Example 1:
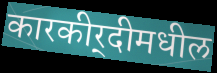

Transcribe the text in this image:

कारकीर्दीमधील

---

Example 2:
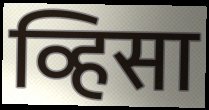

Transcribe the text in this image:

व्हिसा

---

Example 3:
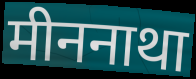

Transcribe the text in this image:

मीननाथा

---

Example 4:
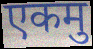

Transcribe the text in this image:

एकमु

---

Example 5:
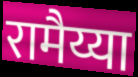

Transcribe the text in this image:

रामैय्या